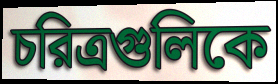
চরিত্রগুলিকে